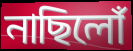
নাছিলোঁ